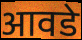
आवडे